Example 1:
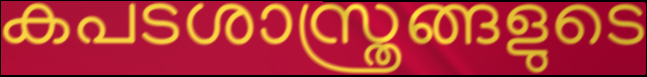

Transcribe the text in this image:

കപടശാസ്ത്രങ്ങളുടെ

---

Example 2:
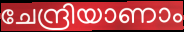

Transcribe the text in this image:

ചേന്ദ്രിയാണാം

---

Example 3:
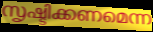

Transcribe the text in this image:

സൃഷ്ടിക്കണമെന്ന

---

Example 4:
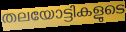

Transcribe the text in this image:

തലയോട്ടികളുടെ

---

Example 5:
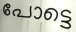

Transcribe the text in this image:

പോട്ടെ